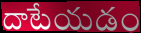
దాటేయడం